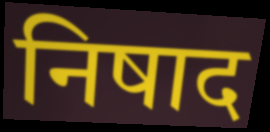
निषाद